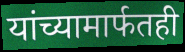
यांच्यामार्फतही